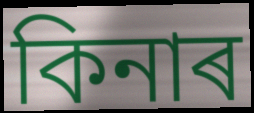
কিনাৰ